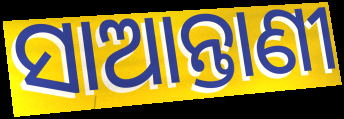
ସାଆନ୍ତାଣୀ